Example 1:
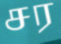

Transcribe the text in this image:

சர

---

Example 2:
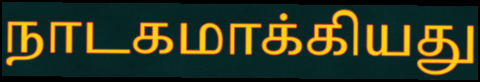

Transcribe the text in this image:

நாடகமாக்கியது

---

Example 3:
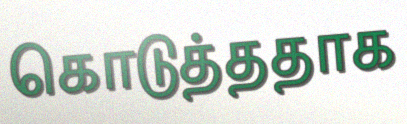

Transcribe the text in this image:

கொடுத்ததாக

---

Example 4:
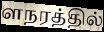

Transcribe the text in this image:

ளநரத்தில்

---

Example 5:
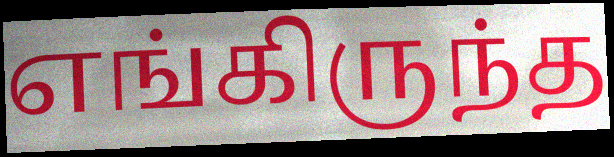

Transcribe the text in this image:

எங்கிருந்த